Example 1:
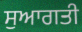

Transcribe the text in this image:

ਸੁਆਗਤੀ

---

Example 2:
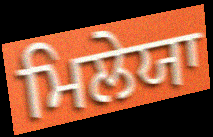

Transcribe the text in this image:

ਮਿਲੇਯਾ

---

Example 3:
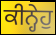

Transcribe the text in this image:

ਕੀਨ੍ਹੇਹੁ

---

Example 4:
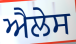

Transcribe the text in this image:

ਐਲੇਸ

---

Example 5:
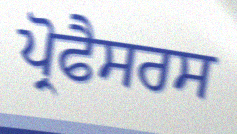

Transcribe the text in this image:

ਪ੍ਰੋਫੈਸਰਸ